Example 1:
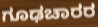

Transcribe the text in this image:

ಗೂಢಚಾರರ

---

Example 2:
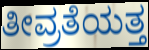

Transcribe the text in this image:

ತೀವ್ರತೆಯತ್ತ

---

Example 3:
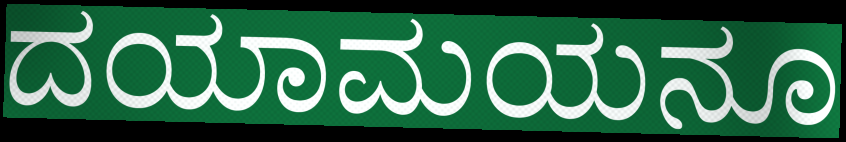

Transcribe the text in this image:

ದಯಾಮಯನೂ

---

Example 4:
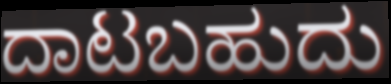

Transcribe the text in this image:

ದಾಟಬಹುದು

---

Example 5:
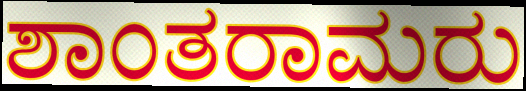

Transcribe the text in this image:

ಶಾಂತರಾಮರು